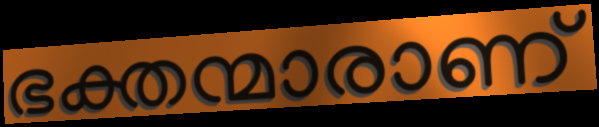
ഭക്തന്മാരാണ്